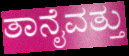
ತಾನೈವತ್ತು